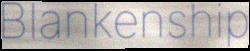
Blankenship